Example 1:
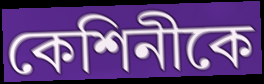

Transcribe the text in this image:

কেশিনীকে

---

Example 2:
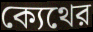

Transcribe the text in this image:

ক্যেথের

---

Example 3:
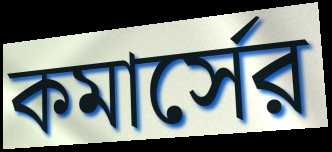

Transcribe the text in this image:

কমার্সের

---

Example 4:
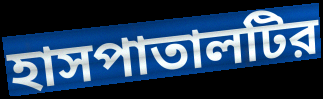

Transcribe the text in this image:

হাসপাতালটির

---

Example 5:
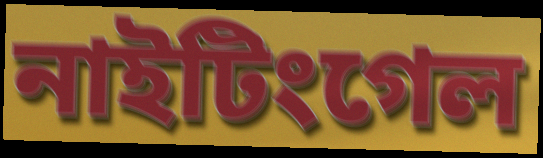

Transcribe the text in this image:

নাইটিংগেল